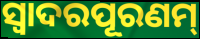
ସ୍ଵାଦରପୂରଣମ୍